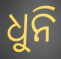
ଧୁନି